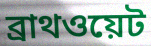
ব্রাথওয়েট